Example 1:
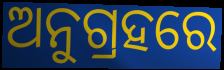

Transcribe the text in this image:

ଅନୁଗ୍ରହରେ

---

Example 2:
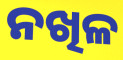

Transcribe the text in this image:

ନଖିଳ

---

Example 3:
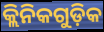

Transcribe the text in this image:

କ୍ଲିନିକଗୁଡ଼ିକ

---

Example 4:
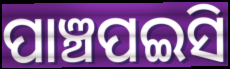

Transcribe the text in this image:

ପାଞ୍ଚପଇସି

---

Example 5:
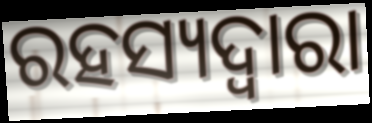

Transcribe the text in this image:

ରହସ୍ୟଦ୍ଵାରା